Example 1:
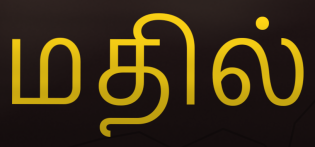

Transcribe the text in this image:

மதில்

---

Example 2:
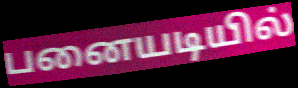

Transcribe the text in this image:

பனையடியில்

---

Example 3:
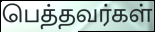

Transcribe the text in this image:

பெத்தவர்கள்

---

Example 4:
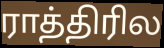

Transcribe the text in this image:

ராத்திரில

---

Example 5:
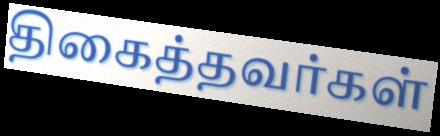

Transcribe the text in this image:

திகைத்தவர்கள்